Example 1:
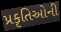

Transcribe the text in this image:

પ્રકૃતિઓની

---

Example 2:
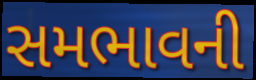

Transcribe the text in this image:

સમભાવની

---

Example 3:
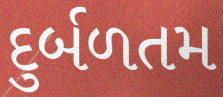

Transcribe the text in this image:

દુર્બળતમ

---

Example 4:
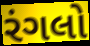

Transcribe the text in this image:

રંગલો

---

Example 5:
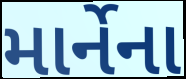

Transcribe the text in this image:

માર્નેના